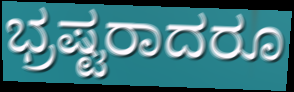
ಭ್ರಷ್ಟರಾದರೂ